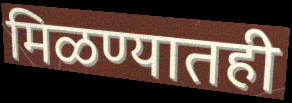
मिळण्यातही